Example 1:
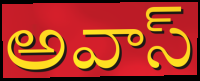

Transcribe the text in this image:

అవాస్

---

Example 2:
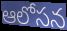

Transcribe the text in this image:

ఆలోసన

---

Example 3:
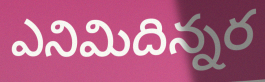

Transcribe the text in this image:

ఎనిమిదిన్నర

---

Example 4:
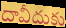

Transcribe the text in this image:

దావీదుకు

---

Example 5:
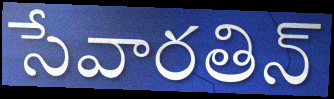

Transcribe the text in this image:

సేవారతిన్